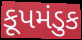
કૂપમંડુક